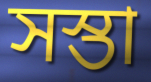
সস্তা